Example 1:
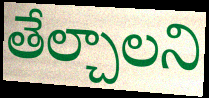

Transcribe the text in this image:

తేల్చాలని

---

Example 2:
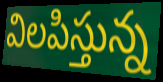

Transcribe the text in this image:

విలపిస్తున్న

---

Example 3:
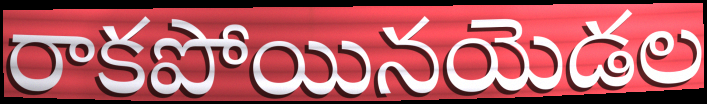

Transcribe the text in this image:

రాకపోయినయెడల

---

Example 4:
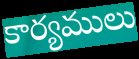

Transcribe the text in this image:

కార్యములు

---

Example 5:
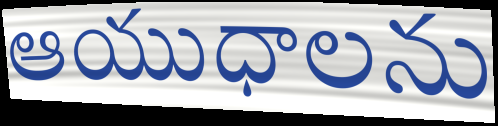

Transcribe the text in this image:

ఆయుధాలను